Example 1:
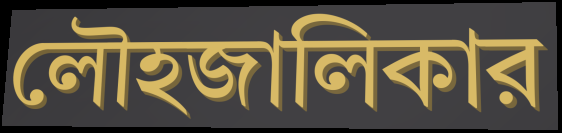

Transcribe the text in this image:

লৌহজালিকার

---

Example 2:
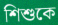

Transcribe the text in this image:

শিশুকে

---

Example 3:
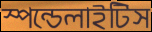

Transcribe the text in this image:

স্পন্ডেলাইটিস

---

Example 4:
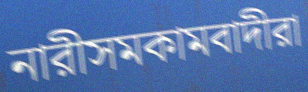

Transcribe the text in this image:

নারীসমকামবাদীরা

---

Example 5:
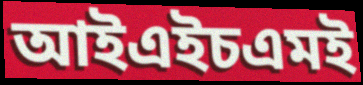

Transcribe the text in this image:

আইএইচএমই